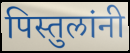
पिस्तुलांनी